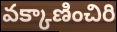
వక్కాణించిరి